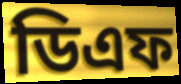
ডিএফ